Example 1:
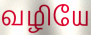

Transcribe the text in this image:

வழியே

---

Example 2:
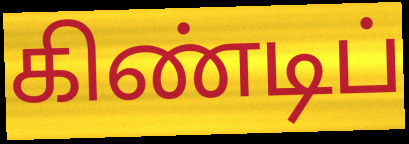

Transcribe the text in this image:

கிண்டிப்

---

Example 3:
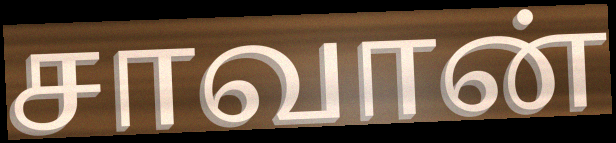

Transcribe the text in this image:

சாவான்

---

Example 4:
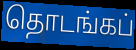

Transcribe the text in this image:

தொடங்கப்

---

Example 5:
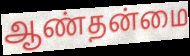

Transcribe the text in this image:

ஆண்தன்மை